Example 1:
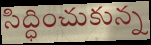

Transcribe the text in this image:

సిద్ధించుకున్న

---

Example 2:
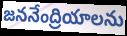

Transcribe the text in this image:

జననేంద్రియాలను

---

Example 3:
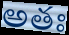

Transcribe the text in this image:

అతః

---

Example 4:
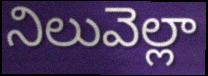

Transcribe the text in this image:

నిలువెల్లా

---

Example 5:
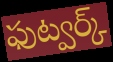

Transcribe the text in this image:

ఫుట్వర్క్